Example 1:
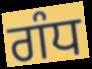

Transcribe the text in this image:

ਗੰਧ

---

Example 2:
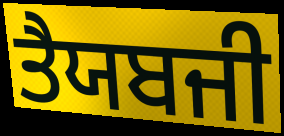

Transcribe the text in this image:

ਤੈਯਬਜੀ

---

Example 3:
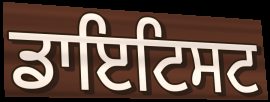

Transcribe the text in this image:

ਡਾਇਟਿਸਟ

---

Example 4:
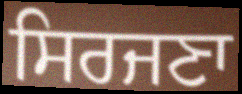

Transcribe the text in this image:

ਸਿਰਜਣਾ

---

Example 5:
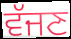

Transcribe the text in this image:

ਵੱਜਣ